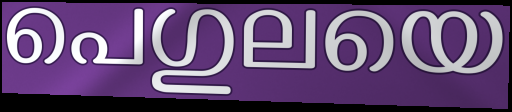
പെഗുലയെ